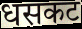
धसकट